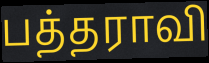
பத்தராவி